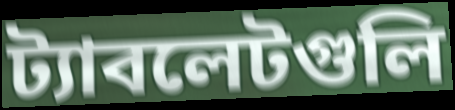
ট্যাবলেটগুলি